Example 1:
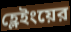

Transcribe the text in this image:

হ্লেইংয়ের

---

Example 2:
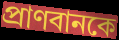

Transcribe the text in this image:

প্রাণবানকে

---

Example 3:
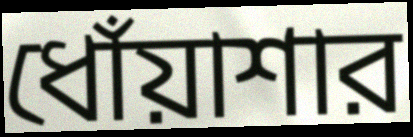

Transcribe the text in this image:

ধোঁয়াশার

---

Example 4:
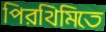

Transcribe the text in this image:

পিরথিমিতে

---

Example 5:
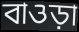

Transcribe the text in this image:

বাওড়া